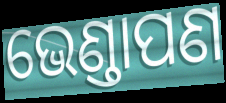
ଭେଣ୍ଡାପଣ